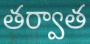
తర్వాత